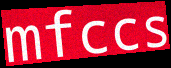
mfccs